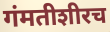
गंमतीशीरच